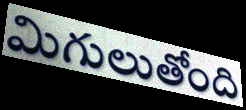
మిగులుతోంది